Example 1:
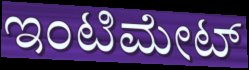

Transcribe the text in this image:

ಇಂಟಿಮೇಟ್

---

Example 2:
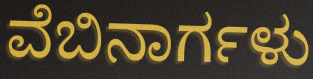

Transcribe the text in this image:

ವೆಬಿನಾರ್ಗಳು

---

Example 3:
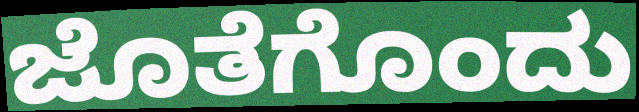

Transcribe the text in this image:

ಜೊತೆಗೊಂದು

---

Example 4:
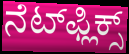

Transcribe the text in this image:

ನೆಟ್‌ಫ್ಲಿಕ್ಸ್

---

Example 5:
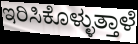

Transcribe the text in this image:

ಇರಿಸಿಕೊಳ್ಳುತ್ತಾಳೆ